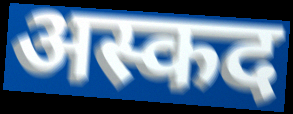
अस्कद